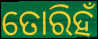
ତୋରିହଁ